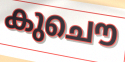
കുചൌ